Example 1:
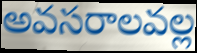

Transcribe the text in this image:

అవసరాలవల్ల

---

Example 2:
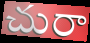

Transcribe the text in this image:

చురా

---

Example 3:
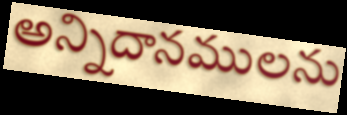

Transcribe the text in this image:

అన్నిదానములను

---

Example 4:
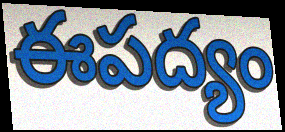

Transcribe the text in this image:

ఈపద్యం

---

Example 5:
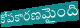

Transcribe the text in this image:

కోపకారణమైంది